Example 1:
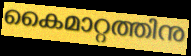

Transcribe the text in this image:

കൈമാറ്റത്തിനു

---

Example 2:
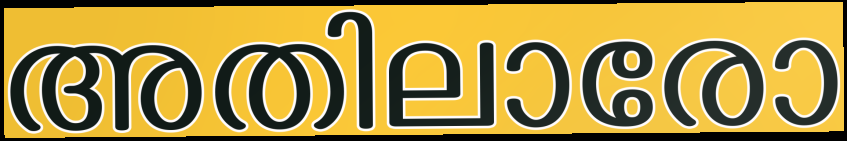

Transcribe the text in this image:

അതിലാരോ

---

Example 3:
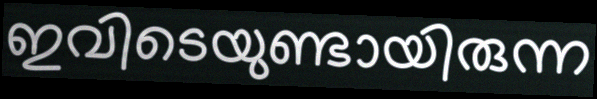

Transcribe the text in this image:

ഇവിടെയുണ്ടായിരുന്ന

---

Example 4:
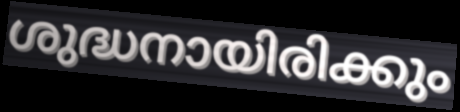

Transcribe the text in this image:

ശുദ്ധനായിരിക്കും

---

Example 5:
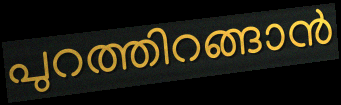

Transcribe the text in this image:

പുറത്തിറങ്ങാൻ